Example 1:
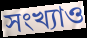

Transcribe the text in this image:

সংখ্যাও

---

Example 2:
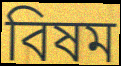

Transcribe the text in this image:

বিষম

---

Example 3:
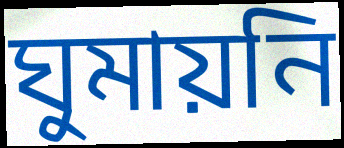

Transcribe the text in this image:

ঘুমায়নি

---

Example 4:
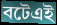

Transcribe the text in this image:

বটেএই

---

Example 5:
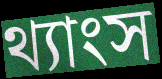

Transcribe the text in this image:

থ্যাংস